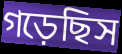
গড়েছিস